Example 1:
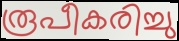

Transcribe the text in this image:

രൂപീകരിച്ചു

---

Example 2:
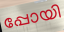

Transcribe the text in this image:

പ്പോയി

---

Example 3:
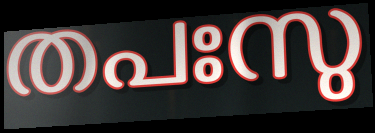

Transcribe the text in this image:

തപഃസു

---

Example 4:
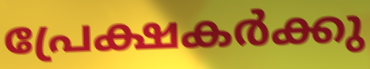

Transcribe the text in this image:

പ്രേക്ഷകർക്കു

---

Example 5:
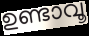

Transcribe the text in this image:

ഉണ്ടാവൂ